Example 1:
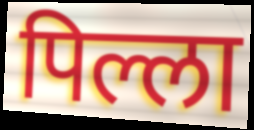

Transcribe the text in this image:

पिल्ला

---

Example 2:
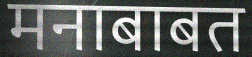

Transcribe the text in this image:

मनाबाबत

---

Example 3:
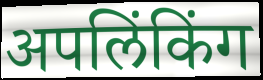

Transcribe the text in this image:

अपलिंकिंग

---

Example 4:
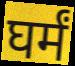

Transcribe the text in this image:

घर्मं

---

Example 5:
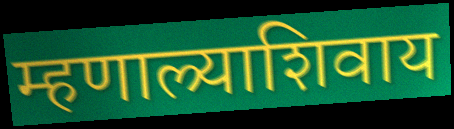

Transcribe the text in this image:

म्हणाल्याशिवाय